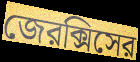
জেরক্সিসের